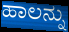
ಹಾಲನ್ನು